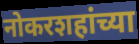
नोकरशहांच्या